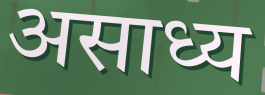
असाध्य